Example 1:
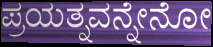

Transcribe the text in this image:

ಪ್ರಯತ್ನವನ್ನೇನೋ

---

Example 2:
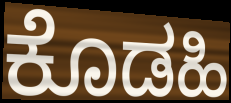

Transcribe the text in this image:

ಕೊಡಹಿ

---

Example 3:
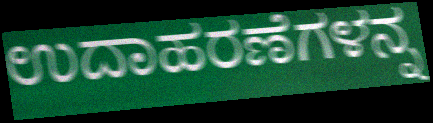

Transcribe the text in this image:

ಉದಾಹರಣೆಗಳನ್ನ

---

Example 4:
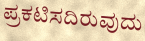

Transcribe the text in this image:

ಪ್ರಕಟಿಸದಿರುವುದು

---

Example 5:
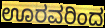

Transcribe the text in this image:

ಊರವರಿಂದ